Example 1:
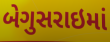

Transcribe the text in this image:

બેગુસરાઇમાં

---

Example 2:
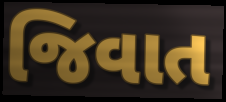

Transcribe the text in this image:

જિવાત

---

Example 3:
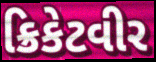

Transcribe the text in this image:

ક્રિકેટવીર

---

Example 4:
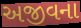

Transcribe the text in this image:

અજીવના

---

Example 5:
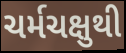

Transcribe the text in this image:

ચર્મચક્ષુથી